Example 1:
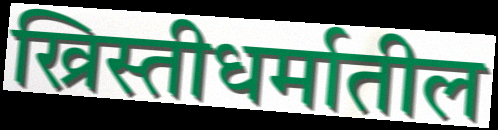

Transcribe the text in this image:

ख्रिस्तीधर्मातील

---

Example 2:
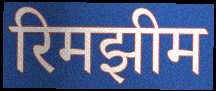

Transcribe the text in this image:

रिमझीम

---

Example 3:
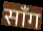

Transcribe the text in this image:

साँग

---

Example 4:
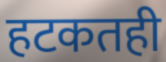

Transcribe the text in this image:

हटकतही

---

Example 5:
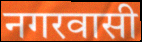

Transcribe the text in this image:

नगरवासी